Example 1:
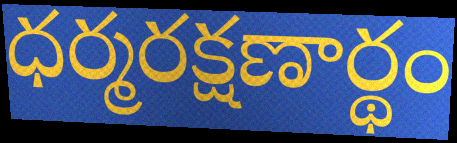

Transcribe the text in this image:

ధర్మరక్షణార్థం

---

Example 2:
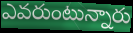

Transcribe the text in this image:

ఎవరుంటున్నారు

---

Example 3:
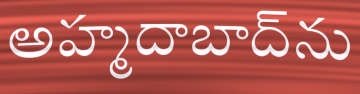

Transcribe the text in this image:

అహ్మదాబాద్‌ను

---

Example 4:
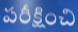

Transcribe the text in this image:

పరీక్షించి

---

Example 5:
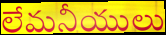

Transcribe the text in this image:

లేమనీయులు